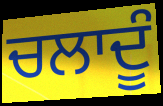
ਚਲਾਦੂੰ